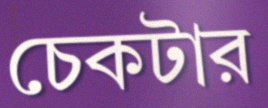
চেকটার